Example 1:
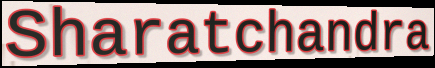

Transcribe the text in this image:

Sharatchandra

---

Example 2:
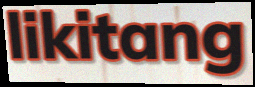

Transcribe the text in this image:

likitang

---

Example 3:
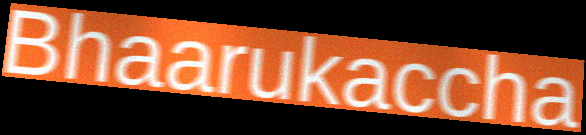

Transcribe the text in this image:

Bhaarukaccha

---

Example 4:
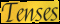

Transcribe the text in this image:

Tenses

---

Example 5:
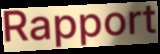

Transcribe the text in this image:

Rapport